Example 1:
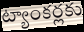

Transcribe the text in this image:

ట్యాంకర్లకు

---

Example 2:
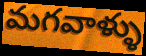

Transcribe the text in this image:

మగవాళ్ళు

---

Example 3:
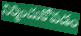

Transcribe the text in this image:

నిర్మించుకోవడం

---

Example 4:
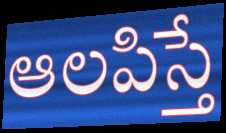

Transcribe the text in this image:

ఆలపిస్తే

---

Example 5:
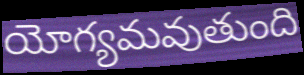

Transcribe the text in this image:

యోగ్యమవుతుంది